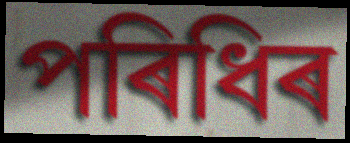
পৰিধিৰ